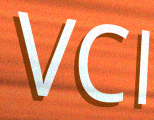
VCI